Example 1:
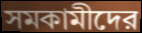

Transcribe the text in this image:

সমকামীদের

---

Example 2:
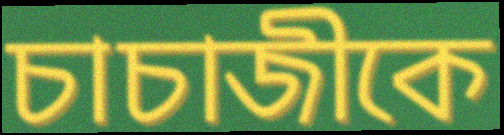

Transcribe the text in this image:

চাচাজীকে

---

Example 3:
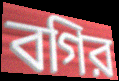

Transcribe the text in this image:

বগির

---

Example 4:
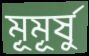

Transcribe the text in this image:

মূমূর্ষু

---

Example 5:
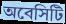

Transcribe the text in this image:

অবেসিটি